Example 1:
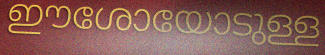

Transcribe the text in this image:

ഈശോയോടുള്ള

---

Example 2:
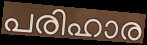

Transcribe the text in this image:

പരിഹാര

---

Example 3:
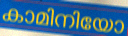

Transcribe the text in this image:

കാമിനിയോ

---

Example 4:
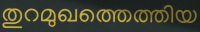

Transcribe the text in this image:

തുറമുഖത്തെത്തിയ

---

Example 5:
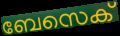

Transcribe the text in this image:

ബേസെക്